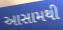
આસામથી